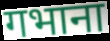
गभाना